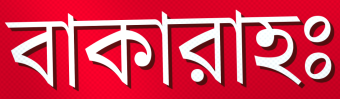
বাকারাহঃ